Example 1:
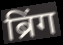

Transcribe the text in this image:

ब्रिंग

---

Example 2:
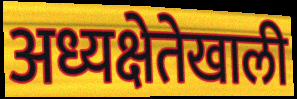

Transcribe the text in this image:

अध्यक्षेतेखाली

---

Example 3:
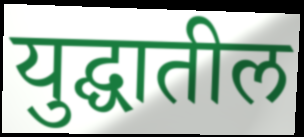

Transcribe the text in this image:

युद्घातील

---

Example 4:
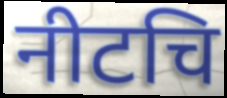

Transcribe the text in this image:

नीटचि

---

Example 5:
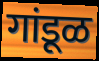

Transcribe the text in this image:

गांडूळ